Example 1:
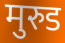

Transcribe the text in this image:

मुरुड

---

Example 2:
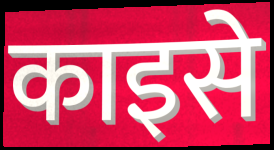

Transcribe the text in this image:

काइसे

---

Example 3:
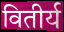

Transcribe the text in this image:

वितीर्य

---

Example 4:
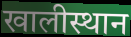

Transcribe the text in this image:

खालीस्थान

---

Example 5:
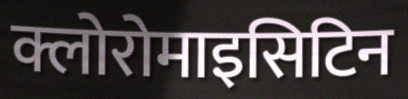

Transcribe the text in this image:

क्लोरोमाइसिटिन